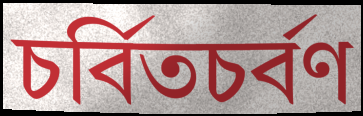
চর্বিতচর্বণ